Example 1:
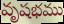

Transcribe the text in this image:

వృషభము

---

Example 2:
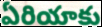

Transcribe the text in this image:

ఏరియాకు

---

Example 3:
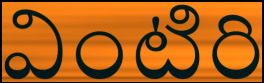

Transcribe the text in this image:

వింటిరి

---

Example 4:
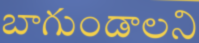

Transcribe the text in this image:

బాగుండాలని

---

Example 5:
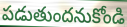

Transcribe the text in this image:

పడుతుందనుకోండి